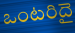
ఒంటరిదై